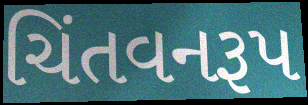
ચિંતવનરૂપ